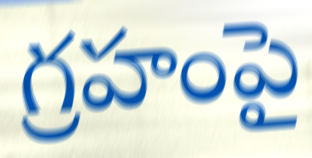
గ్రహంపై